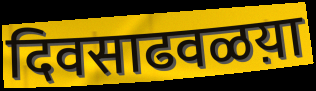
दिवसाढवळय़ा